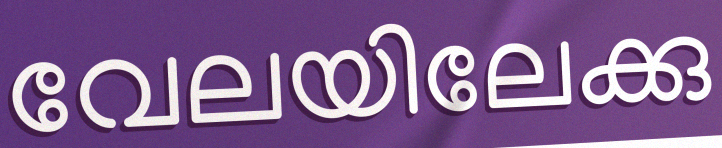
വേലയിലേക്കു